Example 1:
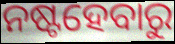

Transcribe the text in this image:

ନଷ୍ଟହେବାରୁ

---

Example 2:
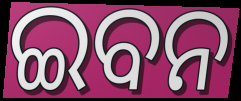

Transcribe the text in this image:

ଇବନ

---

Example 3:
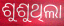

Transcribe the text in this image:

ଶୁଶୁଥିଲା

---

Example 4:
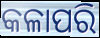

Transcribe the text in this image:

କଳାପରି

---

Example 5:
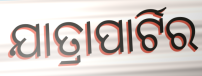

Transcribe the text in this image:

ଯାତ୍ରାପାର୍ଟିର